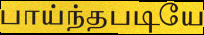
பாய்ந்தபடியே